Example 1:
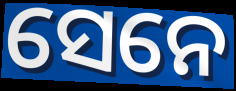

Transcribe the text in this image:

ସେନେ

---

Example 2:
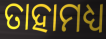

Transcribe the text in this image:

ତାହାମଧ୍ୟ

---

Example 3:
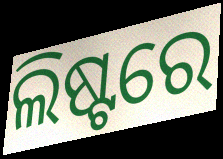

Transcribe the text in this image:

ଲିଷ୍ଟରେ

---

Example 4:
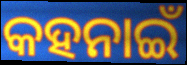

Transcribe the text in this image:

କହନାଇଁ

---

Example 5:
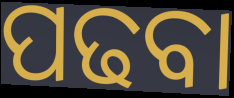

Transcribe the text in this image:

ପଢବା